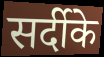
सर्दीके